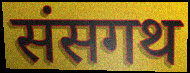
संसगथ